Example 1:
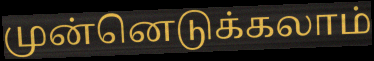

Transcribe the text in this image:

முன்னெடுக்கலாம்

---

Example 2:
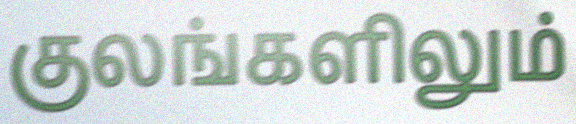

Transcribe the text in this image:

குலங்களிலும்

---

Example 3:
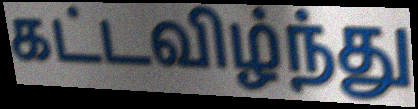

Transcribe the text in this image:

கட்டவிழ்ந்து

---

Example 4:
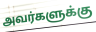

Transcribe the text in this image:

அவர்களுக்கு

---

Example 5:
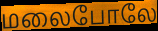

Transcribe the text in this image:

மலைபோலே